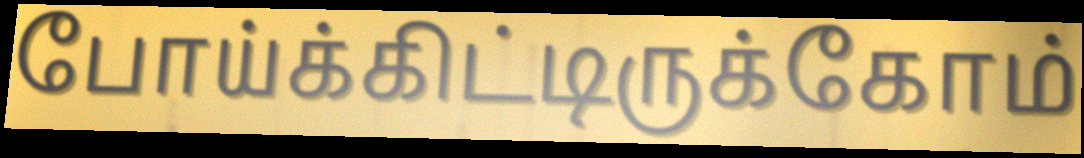
போய்க்கிட்டிருக்கோம்